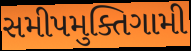
સમીપમુક્તિગામી